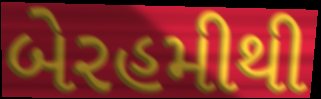
બેરહમીથી